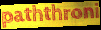
paththroni